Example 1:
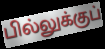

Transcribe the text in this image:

பில்லுக்குப்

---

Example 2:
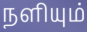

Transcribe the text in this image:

நளியும்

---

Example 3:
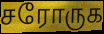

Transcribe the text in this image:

சரோருக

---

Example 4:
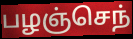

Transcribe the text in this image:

பழஞ்செந்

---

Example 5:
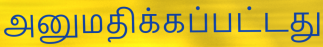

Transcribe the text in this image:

அனுமதிக்கப்பட்டது